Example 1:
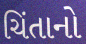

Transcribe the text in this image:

ચિંતાનો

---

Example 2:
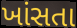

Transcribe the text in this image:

ખાંસતા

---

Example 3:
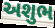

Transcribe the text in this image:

અશુભ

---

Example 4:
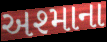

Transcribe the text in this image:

અશ્માના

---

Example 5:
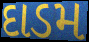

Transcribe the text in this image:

દાડમ